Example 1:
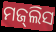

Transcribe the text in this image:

ମଜ୍‌ଲିସ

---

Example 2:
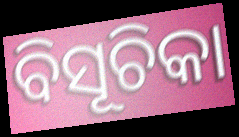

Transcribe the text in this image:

ବିସୂଚିକା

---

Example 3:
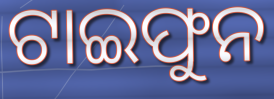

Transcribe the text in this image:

ଟାଇଫୁନ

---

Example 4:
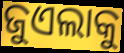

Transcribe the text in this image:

ଜୁଏଲାକୁ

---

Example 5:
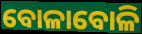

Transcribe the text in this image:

ବୋଳାବୋଳି